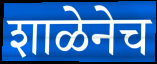
शाळेनेच